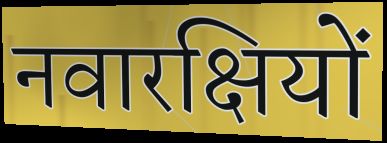
नवारक्षियों